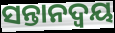
ସନ୍ତାନଦ୍ୱୟ